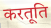
करतूति